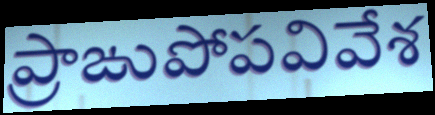
ప్రాఙుపోపవివేశ